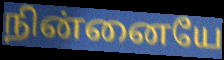
நின்னையே